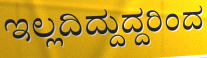
ಇಲ್ಲದಿದ್ದುದ್ದರಿಂದ